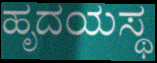
ಹೃದಯಸ್ಥ